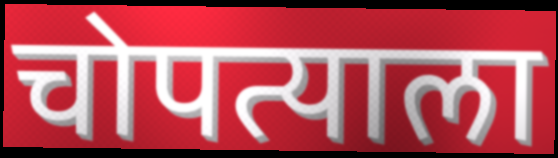
चोपत्याला